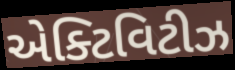
એક્ટિવિટીઝ